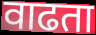
वाढता